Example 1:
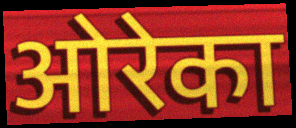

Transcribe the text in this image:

ओरेका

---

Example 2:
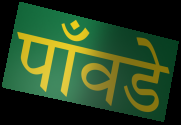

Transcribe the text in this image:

पाँवडे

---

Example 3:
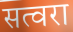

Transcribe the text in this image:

सत्वरा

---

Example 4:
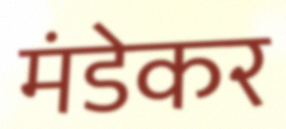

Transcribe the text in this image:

मंडेकर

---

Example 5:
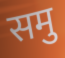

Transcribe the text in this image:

समु